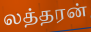
லத்தரன்